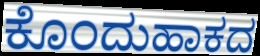
ಕೊಂದುಹಾಕದ